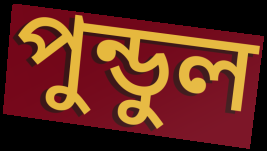
পুন্ডুল